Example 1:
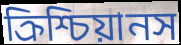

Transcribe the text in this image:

ক্রিশ্চিয়ানস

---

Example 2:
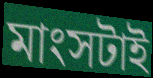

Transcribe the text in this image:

মাংসটাই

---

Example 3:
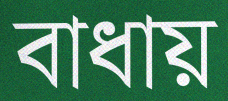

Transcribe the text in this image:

বাধায়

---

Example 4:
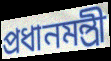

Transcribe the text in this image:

প্রধানমন্ত্রী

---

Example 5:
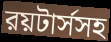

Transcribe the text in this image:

রয়টার্সসহ